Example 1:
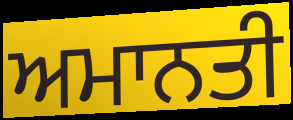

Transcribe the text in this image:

ਅਮਾਨਤੀ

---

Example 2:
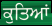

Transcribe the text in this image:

ਕੁਤਿਆਂ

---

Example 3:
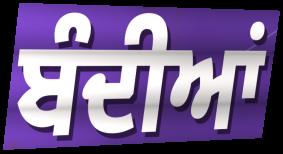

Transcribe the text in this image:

ਬੰਦੀਆਂ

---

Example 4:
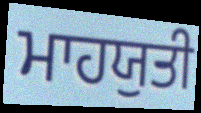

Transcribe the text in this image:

ਮਾਹਯੁਤੀ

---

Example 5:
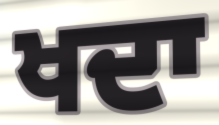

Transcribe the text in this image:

ਖਦਾ